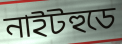
নাইটহুডে